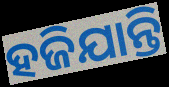
ହଜିଯାନ୍ତି